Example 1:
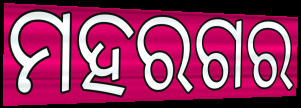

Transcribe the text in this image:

ମହରଗର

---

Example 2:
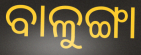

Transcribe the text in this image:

ବାଳୁଙ୍ଗା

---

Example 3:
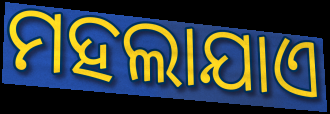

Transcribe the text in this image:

ମହଲାଯାଏ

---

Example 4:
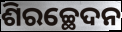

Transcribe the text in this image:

ଶିରଚ୍ଛେଦନ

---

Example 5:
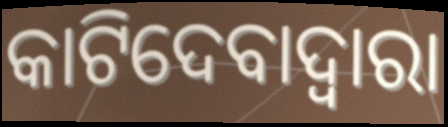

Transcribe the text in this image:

କାଟିଦେବାଦ୍ଵାରା